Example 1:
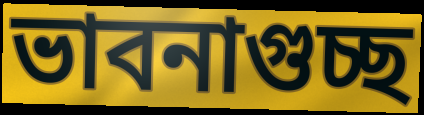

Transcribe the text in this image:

ভাবনাগুচ্ছ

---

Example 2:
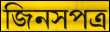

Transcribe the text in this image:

জিনসপত্র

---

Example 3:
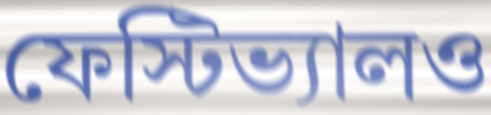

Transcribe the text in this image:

ফেস্টিভ্যালও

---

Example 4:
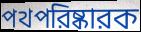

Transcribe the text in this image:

পথপরিষ্কারক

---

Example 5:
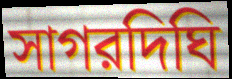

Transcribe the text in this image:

সাগরদিঘি